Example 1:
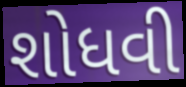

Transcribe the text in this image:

શોધવી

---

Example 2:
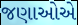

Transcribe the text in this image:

જણાઓએ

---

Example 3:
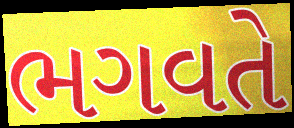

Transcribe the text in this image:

ભગવતે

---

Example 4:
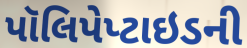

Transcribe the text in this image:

પૉલિપેપ્ટાઇડની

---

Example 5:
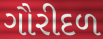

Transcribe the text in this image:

ગૌરીદળ